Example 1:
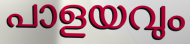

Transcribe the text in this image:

പാളയവും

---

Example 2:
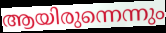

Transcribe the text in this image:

ആയിരുന്നെന്നും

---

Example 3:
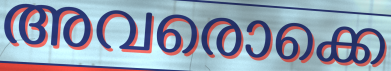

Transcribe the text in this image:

അവരൊക്കെ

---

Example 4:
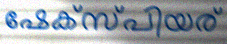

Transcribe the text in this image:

ഷേക്സ്പിയര്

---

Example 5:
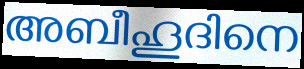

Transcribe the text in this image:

അബീഹൂദിനെ